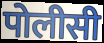
पोलीसी